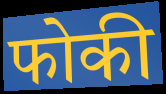
फोकी